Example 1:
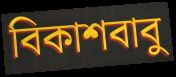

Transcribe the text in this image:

বিকাশবাবু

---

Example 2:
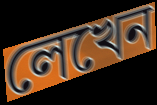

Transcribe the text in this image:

লেখেন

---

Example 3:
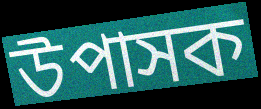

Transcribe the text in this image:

উপাসক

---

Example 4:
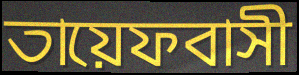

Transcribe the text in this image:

তায়েফবাসী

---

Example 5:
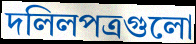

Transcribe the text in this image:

দলিলপত্রগুলো